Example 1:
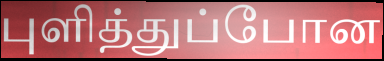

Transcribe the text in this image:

புளித்துப்போன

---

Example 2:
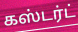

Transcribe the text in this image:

கஸ்டர்ட்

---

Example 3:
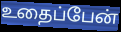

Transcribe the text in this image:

உதைப்பேன்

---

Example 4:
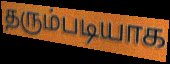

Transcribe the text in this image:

தரும்படியாக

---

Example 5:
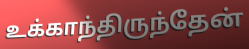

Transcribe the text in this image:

உக்காந்திருந்தேன்